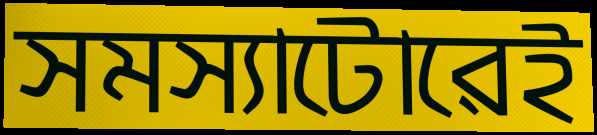
সমস্যাটোৱেই